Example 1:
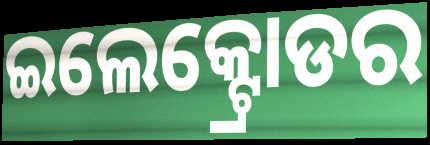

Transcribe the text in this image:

ଇଲେକ୍ଟ୍ରୋଡର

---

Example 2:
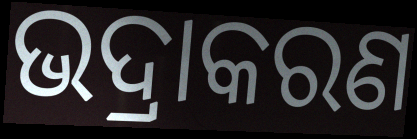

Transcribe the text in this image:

ଭଦ୍ରାକରଣ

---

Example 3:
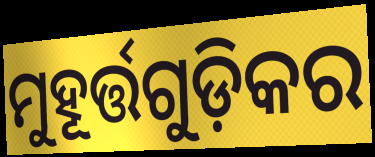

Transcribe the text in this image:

ମୁହୂର୍ତ୍ତଗୁଡ଼ିକର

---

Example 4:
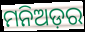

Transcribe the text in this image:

ମନିଅଡ଼ର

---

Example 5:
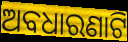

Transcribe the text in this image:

ଅବଧାରଣାଟି